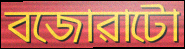
বজোৱাটো